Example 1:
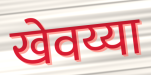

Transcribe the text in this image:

खेवय्या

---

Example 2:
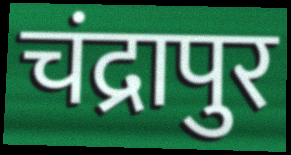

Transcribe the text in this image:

चंद्रापुर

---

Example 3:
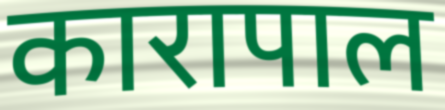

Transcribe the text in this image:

कारापाल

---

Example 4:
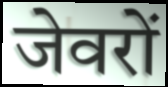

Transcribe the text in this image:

जेवरों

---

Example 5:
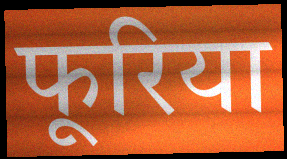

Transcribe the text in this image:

फूरिया